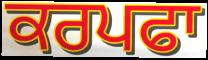
ਕਰਪਫਾ